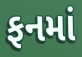
ફનમાં